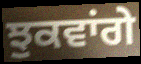
ਝੁਕਵਾਂਗੇ